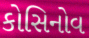
કોસિનોવ